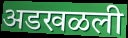
अडखळली